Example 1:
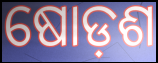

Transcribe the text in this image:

ଷୋଡ଼ଶ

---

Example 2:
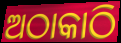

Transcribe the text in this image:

ଅଠାକାଠି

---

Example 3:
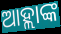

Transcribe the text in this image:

ଆହ୍ଲାଙ୍କ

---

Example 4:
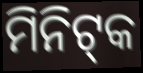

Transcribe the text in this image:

ମିନିଟ୍‍କ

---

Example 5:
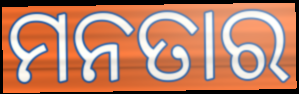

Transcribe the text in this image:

ମନତାର